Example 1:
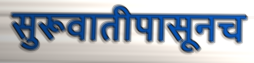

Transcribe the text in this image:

सुरूवातीपासूनच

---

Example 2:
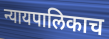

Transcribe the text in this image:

न्यायपालिकाच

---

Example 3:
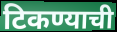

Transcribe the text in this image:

टिकण्याची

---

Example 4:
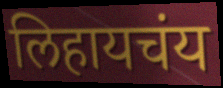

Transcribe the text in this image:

लिहायचंय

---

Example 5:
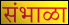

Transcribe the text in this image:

संभाळा